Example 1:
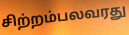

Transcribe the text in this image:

சிற்றம்பலவரது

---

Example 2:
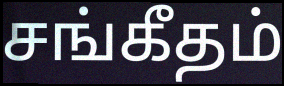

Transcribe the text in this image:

சங்கீதம்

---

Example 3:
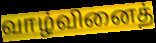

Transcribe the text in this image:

வாழ்வினைத்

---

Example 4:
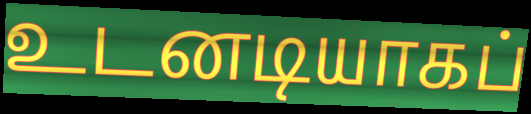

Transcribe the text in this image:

உடனடியாகப்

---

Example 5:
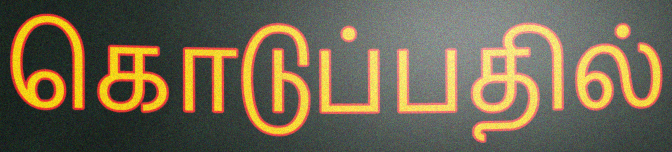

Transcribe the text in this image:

கொடுப்பதில்